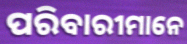
ପରିବାରୀମାନେ